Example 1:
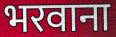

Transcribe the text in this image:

भरवाना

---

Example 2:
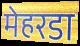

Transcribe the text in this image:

मेहरडा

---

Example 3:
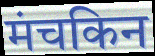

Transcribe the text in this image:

मंचकिन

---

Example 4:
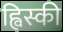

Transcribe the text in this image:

ह्विस्की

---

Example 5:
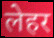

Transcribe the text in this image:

लेहर